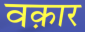
वक़ार